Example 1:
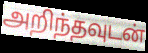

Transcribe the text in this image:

அறிந்தவுடன்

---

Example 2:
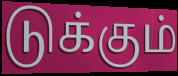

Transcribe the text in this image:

டுக்கும்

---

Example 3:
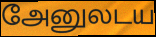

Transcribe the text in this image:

அேனுலடய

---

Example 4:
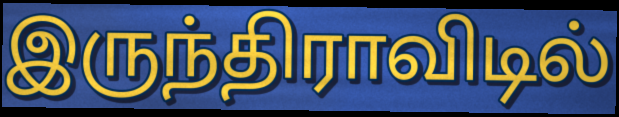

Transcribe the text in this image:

இருந்திராவிடில்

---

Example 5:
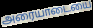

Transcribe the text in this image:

அரையாடையை